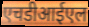
एचडीआईएल